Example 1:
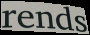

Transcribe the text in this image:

rends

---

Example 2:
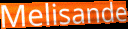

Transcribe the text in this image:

Melisande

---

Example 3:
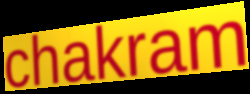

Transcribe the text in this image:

chakram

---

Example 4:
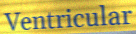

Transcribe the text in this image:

Ventricular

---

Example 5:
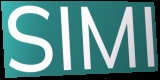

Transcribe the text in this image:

SIMI